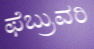
ಫೆಬ್ರುವರಿ